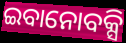
ଇବାନୋବକ୍ସି